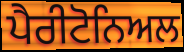
ਪੈਰੀਟੋਨਿਅਲ